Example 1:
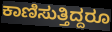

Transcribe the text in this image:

ಕಾಣಿಸುತ್ತಿದ್ದರೂ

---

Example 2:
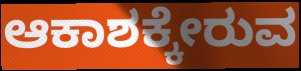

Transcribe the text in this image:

ಆಕಾಶಕ್ಕೇರುವ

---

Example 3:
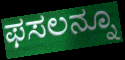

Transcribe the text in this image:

ಫಸಲನ್ನೂ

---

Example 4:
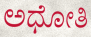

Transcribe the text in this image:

ಅಧೋತಿ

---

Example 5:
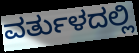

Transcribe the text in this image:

ವರ್ತುಳದಲ್ಲಿ